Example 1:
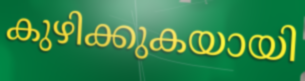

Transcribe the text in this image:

കുഴിക്കുകയായി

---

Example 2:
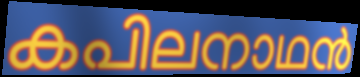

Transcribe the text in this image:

കപിലനാഥൻ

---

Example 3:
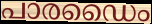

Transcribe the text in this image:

പാരഡൈം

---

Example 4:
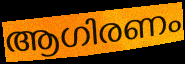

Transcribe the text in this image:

ആഗിരണം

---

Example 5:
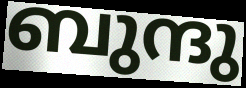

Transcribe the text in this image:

ബുന്ദു